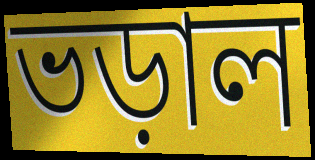
ভড়াল